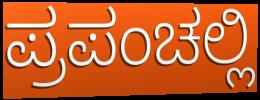
ಪ್ರಪಂಚಲ್ಲಿ